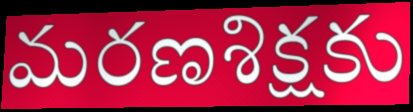
మరణశిక్షకు